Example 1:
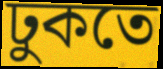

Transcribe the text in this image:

ঢুকতে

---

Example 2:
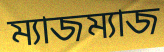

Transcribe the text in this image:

ম্যাজম্যাজ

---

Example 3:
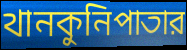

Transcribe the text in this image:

থানকুনিপাতার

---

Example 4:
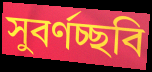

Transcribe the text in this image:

সুবর্ণচ্ছবি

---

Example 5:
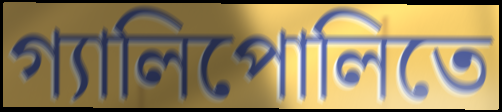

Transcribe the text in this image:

গ্যালিপোলিতে